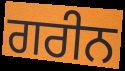
ਗਰੀਨ